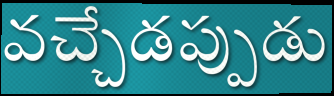
వచ్చేడప్పుడు